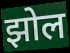
झोल